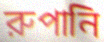
রুপানি